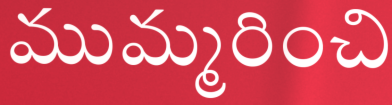
ముమ్మరించి